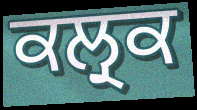
ਕਲ੍ਰਕ